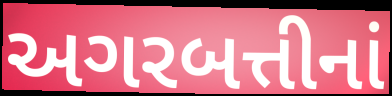
અગરબત્તીનાં